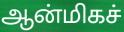
ஆன்மிகச்